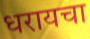
धरायचा